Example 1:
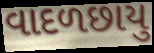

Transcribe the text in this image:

વાદળછાયુ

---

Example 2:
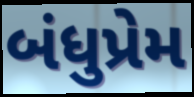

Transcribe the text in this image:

બંધુપ્રેમ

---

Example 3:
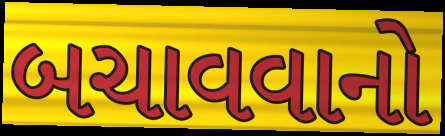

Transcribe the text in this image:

બચાવવાનો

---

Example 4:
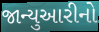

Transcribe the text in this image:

જાન્યુઆરીનો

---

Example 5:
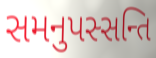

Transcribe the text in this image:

સમનુપસ્સન્તિ